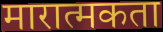
मारात्मकता